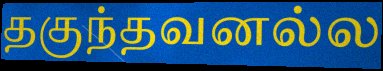
தகுந்தவனல்ல